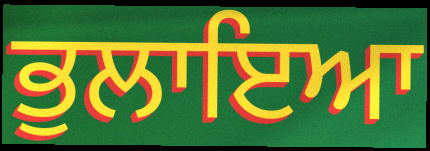
ਭੁਲਾਇਆ